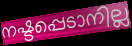
നഷ്ടപ്പെടാനില്ല